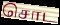
சொட